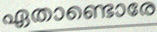
ഏതാണ്ടൊരേ